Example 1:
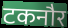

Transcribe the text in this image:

टकनौर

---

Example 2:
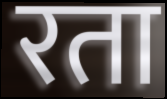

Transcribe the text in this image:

रता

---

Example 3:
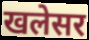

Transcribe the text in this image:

खलेसर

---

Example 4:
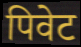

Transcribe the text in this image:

पिवेट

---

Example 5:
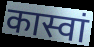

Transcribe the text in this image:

कास्वां